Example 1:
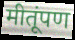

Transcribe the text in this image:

मीतूंपण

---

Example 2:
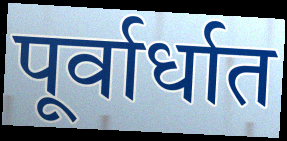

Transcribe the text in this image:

पूर्वार्धात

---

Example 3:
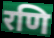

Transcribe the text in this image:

रणि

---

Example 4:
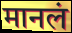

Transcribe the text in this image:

मानलं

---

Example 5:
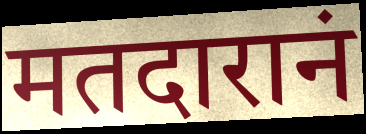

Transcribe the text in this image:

मतदारानं